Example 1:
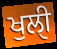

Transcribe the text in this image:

ਖੁਲੀੑ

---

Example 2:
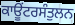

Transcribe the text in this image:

ਕਾਊਂਟਰਸੰਤੁਲਨ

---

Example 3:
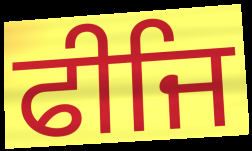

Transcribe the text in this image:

ਫੀਜਿ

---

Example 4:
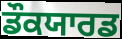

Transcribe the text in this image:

ਡੌਕਯਾਰਡ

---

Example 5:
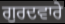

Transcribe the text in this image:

ਗੁਰਦਵਾਰੇ